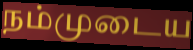
நம்முடைய